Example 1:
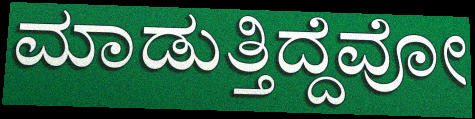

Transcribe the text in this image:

ಮಾಡುತ್ತಿದ್ದೆವೋ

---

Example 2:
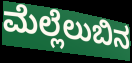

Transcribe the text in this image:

ಮೆಲ್ಲೆಲುಬಿನ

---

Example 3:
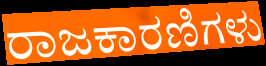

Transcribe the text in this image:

ರಾಜಕಾರಣಿಗಳು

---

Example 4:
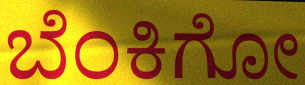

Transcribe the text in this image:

ಬೆಂಕಿಗೋ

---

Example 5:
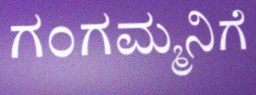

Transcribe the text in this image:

ಗಂಗಮ್ಮನಿಗೆ